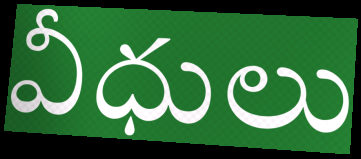
వీధులు